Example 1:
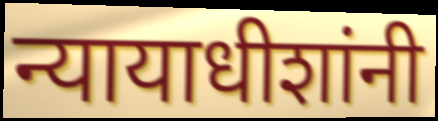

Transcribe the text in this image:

न्यायाधीशांनी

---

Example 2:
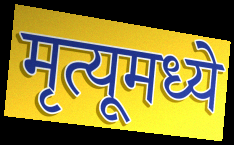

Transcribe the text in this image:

मृत्यूमध्ये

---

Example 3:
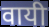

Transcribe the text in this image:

वायी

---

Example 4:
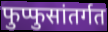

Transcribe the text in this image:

फुप्फुसांतर्गत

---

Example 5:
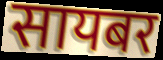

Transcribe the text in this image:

सायबर